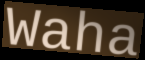
Waha